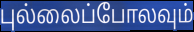
புல்லைப்போலவும்